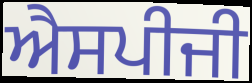
ਐਸਪੀਜੀ